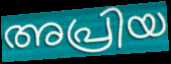
അപ്രിയ